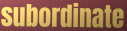
subordinate